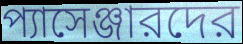
প্যাসেঞ্জারদের